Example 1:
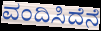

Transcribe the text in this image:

ವಂದಿಸಿದೆನೆ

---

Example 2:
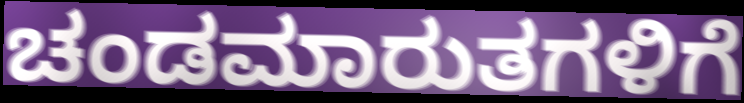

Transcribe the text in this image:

ಚಂಡಮಾರುತಗಳಿಗೆ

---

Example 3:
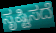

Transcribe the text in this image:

ಸೃಷ್ಟಿಸದೆ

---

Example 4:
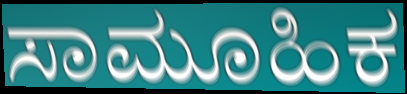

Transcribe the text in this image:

ಸಾಮೂಹಿಕ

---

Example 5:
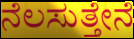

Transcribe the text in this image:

ನೆಲಸುತ್ತೇನೆ